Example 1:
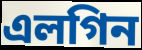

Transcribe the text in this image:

এলগিন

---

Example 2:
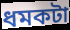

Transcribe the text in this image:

ধমকটা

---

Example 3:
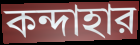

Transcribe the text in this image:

কন্দাহার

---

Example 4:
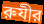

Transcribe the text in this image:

রুযীর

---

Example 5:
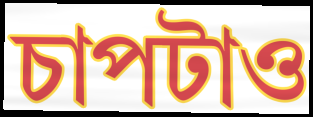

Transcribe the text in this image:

চাপটাও